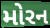
મોરન